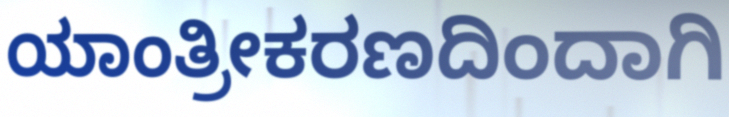
ಯಾಂತ್ರೀಕರಣದಿಂದಾಗಿ